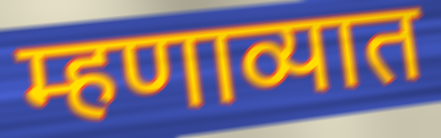
म्हणाव्यात